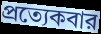
প্রত্যেকবার